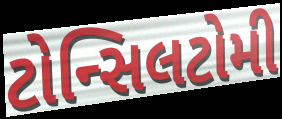
ટોન્સિલટોમી